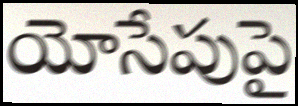
యోసేపుపై